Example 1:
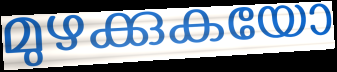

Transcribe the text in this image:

മുഴക്കുകയോ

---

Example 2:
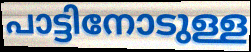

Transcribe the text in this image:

പാട്ടിനോടുള്ള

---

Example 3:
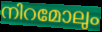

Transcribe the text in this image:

നിറമോലും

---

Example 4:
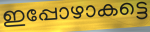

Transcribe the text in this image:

ഇപ്പോഴാകട്ടെ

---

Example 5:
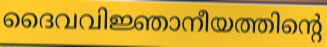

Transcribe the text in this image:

ദൈവവിജ്ഞാനീയത്തിന്റെ